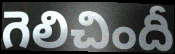
గెలిచిందీ